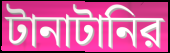
টানাটানির